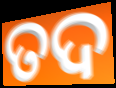
ତଦ